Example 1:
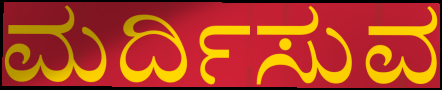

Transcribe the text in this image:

ಮರ್ದಿಸುವ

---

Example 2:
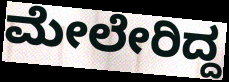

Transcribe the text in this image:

ಮೇಲೇರಿದ್ದ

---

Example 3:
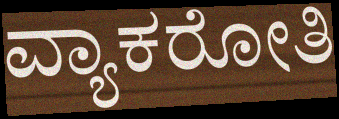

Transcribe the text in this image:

ವ್ಯಾಕರೋತಿ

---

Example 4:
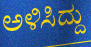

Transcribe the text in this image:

ಅಳಿಸಿದ್ದು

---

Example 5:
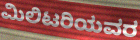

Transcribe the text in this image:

ಮಿಲಿಟರಿಯವರ